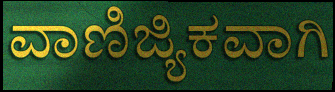
ವಾಣಿಜ್ಯಿಕವಾಗಿ